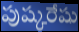
పుష్కరేషు